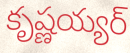
కృష్ణయ్యర్